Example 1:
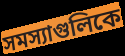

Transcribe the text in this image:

সমস্যাগুলিকে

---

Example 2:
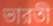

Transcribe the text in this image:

ভারতী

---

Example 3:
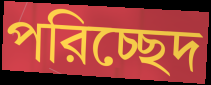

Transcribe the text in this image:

পরিচ্ছেদ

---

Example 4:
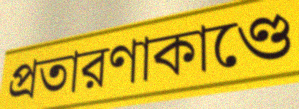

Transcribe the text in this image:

প্রতারণাকাণ্ডে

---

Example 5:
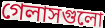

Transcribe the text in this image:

গেলাসগুলো